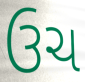
ઉચ